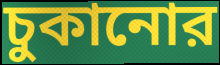
চুকানোর